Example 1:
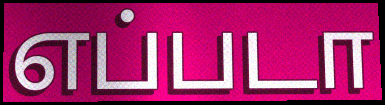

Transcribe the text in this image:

எப்படா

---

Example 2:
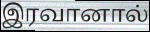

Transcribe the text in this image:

இரவானால்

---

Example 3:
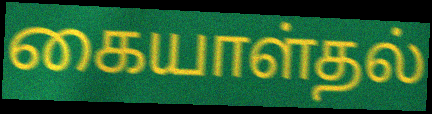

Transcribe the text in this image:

கையாள்தல்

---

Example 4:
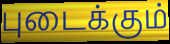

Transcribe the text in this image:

புடைக்கும்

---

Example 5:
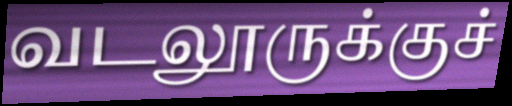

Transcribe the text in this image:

வடலூருக்குச்